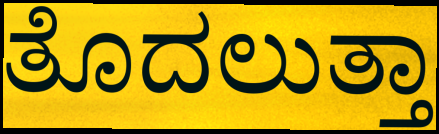
ತೊದಲುತ್ತಾ